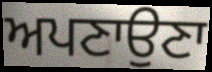
ਅਪਣਾਉਣਾ